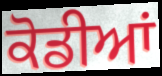
ਕੋਡੀਆਂ